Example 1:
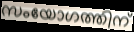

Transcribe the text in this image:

സംയോഗത്തിന്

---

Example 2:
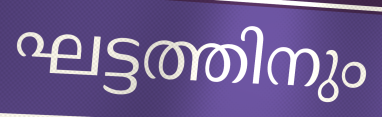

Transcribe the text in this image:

ഘട്ടത്തിനും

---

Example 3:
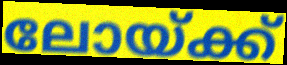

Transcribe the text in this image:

ലോയ്ക്ക്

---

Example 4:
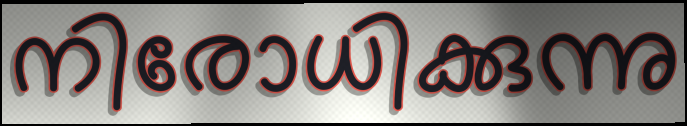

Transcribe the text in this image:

നിരോധിക്കുന്നു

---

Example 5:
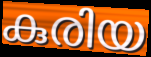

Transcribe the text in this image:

കുരിയ